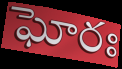
ఘోరః